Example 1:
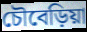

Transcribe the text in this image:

চৌবেড়িয়া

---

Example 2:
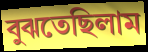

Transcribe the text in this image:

বুঝতেছিলাম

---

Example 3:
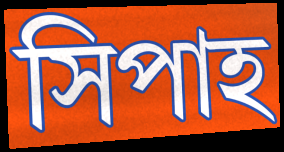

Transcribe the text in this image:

সিপাহ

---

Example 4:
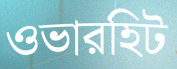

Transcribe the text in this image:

ওভারহিট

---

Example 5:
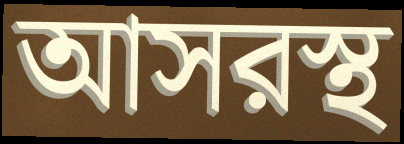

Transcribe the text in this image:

আসরস্থ